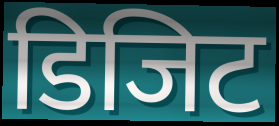
डिजिट